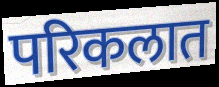
परिकलात